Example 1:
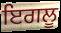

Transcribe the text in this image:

ਇਗਲੂ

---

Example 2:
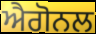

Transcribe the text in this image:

ਐਗੋਨਲ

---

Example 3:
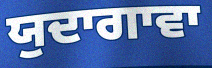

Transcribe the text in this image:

ਯੁਦਾਗਾਵਾ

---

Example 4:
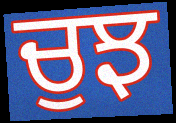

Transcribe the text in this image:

ਚੁਝ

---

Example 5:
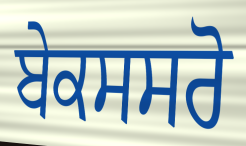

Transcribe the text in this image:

ਬੇਕਸਸਰੋ